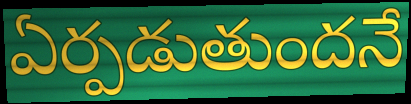
ఏర్పడుతుందనే